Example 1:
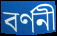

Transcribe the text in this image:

বৰ্ণনী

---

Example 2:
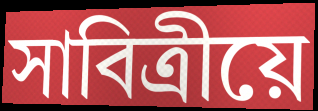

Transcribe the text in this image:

সাবিত্ৰীয়ে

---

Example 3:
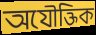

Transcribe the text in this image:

অযৌক্তিক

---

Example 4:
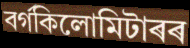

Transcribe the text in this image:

বৰ্গকিলোমিটাৰৰ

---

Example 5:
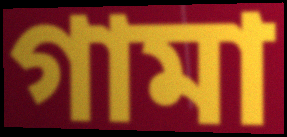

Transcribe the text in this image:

গামা